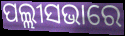
ପଲ୍ଲୀସଭାରେ